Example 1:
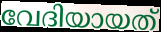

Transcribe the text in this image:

വേദിയായത്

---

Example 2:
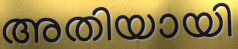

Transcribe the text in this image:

അതിയായി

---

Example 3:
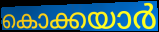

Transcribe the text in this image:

കൊക്കയാർ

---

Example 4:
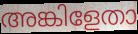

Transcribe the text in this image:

അങ്കിളേതാ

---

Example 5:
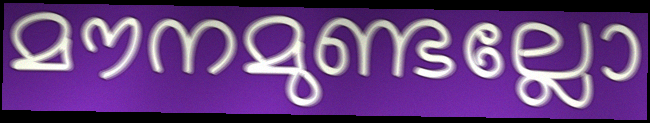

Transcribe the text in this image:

മൗനമുണ്ടല്ലോ